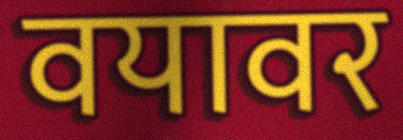
वयावर